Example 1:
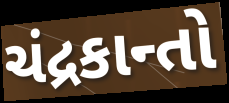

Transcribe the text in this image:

ચંદ્રકાન્તો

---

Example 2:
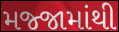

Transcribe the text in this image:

મજ્જામાંથી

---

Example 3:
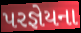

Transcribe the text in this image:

પરજ્ઞેયના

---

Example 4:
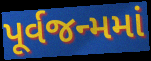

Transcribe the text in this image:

પૂર્વજન્મમાં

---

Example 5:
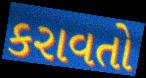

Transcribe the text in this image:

કરાવતો